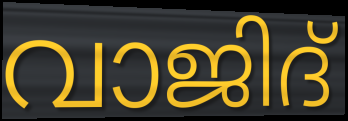
വാജിദ്